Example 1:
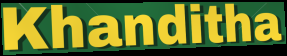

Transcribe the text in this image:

Khanditha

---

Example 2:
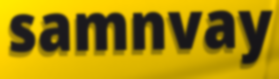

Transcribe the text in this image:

samnvay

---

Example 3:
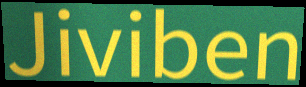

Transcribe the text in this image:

Jiviben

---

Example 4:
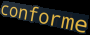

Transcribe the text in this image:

conforme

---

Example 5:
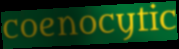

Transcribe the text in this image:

coenocytic